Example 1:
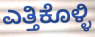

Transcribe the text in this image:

ಎತ್ತಿಕೊಳ್ಳಿ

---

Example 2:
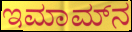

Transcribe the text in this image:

ಇಮಾಮ್‍ನ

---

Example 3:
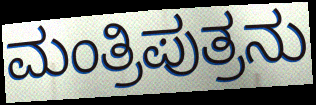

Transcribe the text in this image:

ಮಂತ್ರಿಪುತ್ರನು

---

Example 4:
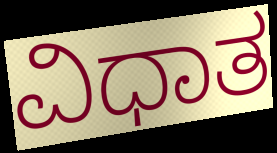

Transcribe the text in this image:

ವಿಧಾತ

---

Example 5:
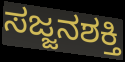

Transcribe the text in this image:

ಸಜ್ಜನಶಕ್ತಿ